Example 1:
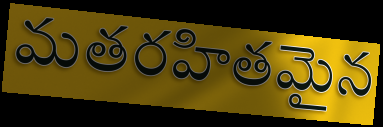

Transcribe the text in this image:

మతరహితమైన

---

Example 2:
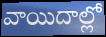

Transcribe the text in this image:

వాయిదాల్లో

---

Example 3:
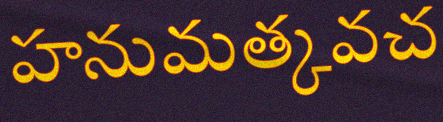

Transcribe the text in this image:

హనుమత్కవచ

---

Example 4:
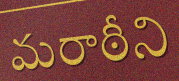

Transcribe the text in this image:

మరాఠీని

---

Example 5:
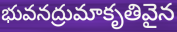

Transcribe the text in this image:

భువనద్రుమాకృతివైన